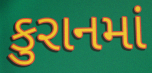
કુરાનમાં